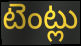
టెంట్లు